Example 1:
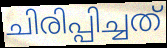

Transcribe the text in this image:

ചിരിപ്പിച്ചത്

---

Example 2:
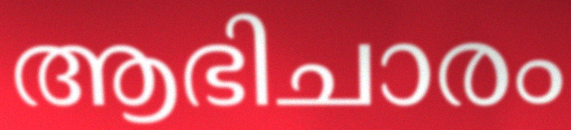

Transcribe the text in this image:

ആഭിചാരം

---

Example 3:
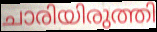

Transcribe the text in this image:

ചാരിയിരുത്തി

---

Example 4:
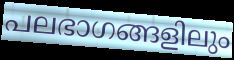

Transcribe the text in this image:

പലഭാഗങ്ങളിലും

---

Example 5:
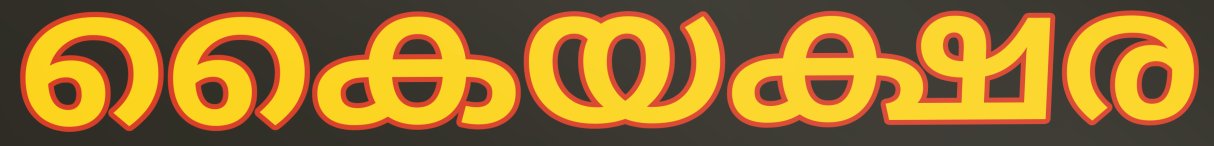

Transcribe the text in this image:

കൈയക്ഷര